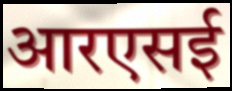
आरएसई